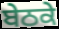
ਬੇਠਕੇ